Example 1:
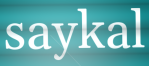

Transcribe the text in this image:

saykal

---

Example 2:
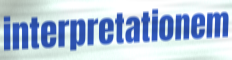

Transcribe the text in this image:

interpretationem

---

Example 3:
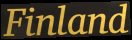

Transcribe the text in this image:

Finland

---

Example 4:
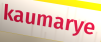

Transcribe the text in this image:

kaumarye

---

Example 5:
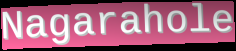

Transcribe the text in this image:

Nagarahole